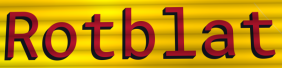
Rotblat